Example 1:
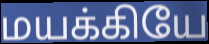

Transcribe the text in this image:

மயக்கியே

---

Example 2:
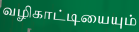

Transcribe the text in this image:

வழிகாட்டியையும்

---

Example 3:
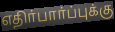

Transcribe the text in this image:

எதிர்பார்ப்புக்கு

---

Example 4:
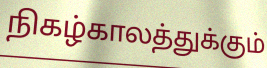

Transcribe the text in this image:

நிகழ்காலத்துக்கும்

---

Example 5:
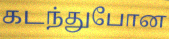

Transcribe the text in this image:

கடந்துபோன